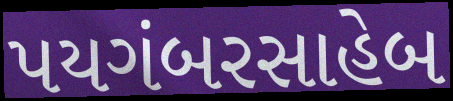
પયગંબરસાહેબ